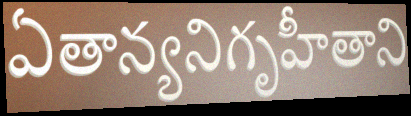
ఏతాన్యనిగృహీతాని